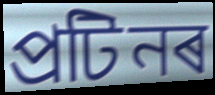
প্ৰটিনৰ